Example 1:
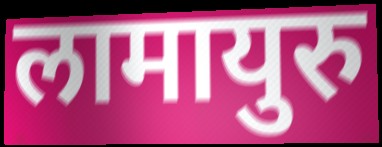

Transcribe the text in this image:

लामायुरु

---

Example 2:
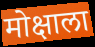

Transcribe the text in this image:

मोक्षाला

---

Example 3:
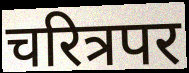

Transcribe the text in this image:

चरित्रपर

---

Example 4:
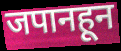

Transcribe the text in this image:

जपानहून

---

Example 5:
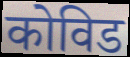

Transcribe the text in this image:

कोविड